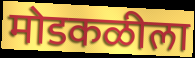
मोडकळीला